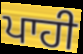
ਪਾਹੀ